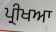
ਪ੍ਰੀਖਆ